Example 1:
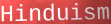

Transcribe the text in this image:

Hinduism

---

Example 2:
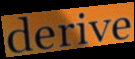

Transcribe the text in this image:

derive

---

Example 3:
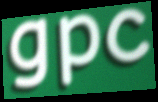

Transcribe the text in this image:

gpc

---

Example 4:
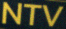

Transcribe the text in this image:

NTV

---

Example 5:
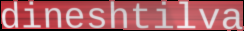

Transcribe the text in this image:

dineshtilva